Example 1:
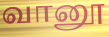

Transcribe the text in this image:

வானூ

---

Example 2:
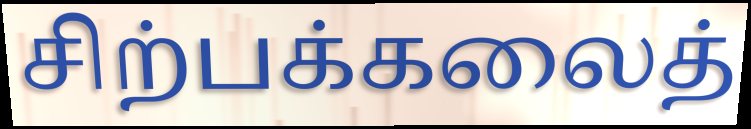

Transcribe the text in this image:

சிற்பக்கலைத்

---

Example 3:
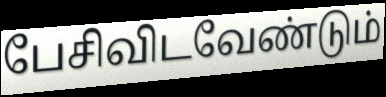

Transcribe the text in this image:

பேசிவிடவேண்டும்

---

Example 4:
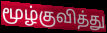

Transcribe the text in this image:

மூழ்குவித்து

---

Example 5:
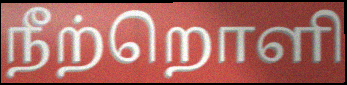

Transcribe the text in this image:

நீற்றொளி